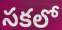
సకలో